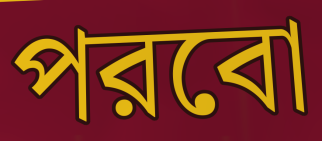
পরবো